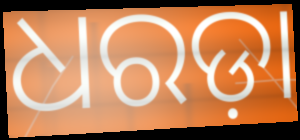
ଧରଡ଼ା